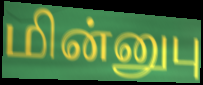
மின்னுபு